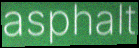
asphalt